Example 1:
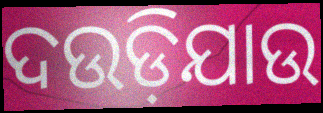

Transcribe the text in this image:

ଦଉଡ଼ିଯାଉ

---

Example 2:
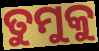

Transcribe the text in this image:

ତୁମୁକୁ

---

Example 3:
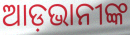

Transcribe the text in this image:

ଆଡ଼ଭାନୀଙ୍କ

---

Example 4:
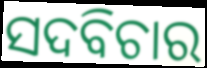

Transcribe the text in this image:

ସଦବିଚାର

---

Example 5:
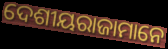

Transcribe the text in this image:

ଦେଶୀୟରାଜାମାନେ